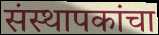
संस्थापकांचा